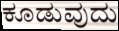
ಕೂಡುವುದು